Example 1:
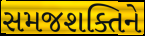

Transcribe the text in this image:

સમજશક્તિને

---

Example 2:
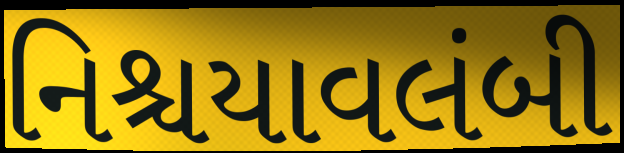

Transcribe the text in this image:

નિશ્ચયાવલંબી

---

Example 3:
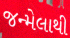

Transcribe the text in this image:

જન્મેલાથી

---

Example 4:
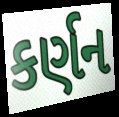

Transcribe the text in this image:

કર્ણન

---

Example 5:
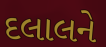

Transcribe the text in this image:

દલાલને